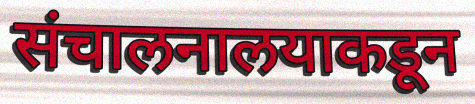
संचालनालयाकडून